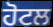
ਹੋਟਲ